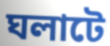
ঘলাটে